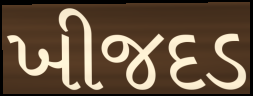
ખીજદડ